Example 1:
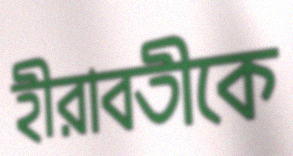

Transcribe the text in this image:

হীরাবতীকে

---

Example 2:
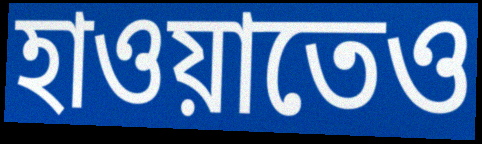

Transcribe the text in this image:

হাওয়াতেও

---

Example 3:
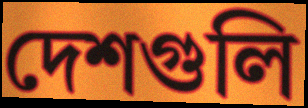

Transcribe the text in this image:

দেশগুলি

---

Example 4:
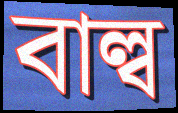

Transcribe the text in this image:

বাল্ব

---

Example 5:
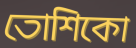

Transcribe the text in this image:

তোশিকো